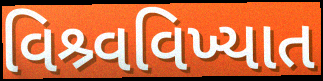
વિશ્ર્વવિખ્યાત